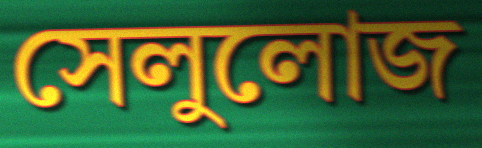
সেলুলোজ